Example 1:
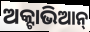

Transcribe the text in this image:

ଅକ୍ଟାଭିଆନ୍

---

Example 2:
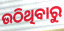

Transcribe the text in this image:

ଉଠିଥିବାରୁ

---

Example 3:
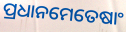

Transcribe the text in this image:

ପ୍ରଧାନମେତେଷାଂ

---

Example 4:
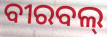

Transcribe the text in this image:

ବୀରବଲ୍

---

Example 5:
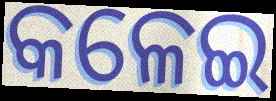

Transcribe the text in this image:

କଳେଇ